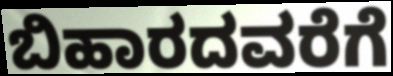
ಬಿಹಾರದವರೆಗೆ